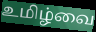
உமிழ்வை